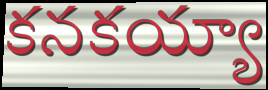
కనకయ్యా